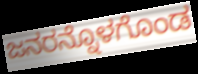
ಜನರನ್ನೊಳಗೊಂಡ